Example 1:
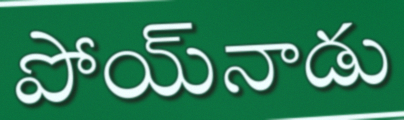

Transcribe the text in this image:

పోయ్‌నాడు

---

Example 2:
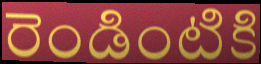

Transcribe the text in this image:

రెండింటికి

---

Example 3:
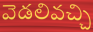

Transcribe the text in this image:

వెడలివచ్చి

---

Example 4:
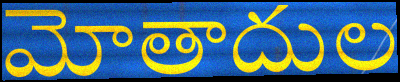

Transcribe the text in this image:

మోతాదుల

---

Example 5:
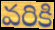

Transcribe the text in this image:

వరికి